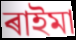
ৰাইমা